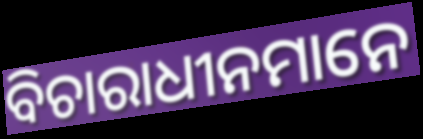
ବିଚାରାଧୀନମାନେ